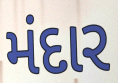
મંદાર